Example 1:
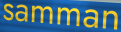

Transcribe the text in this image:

samman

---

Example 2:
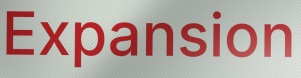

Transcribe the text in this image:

Expansion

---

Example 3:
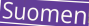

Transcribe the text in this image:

Suomen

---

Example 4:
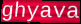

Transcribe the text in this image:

ghyava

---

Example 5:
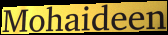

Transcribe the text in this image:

Mohaideen